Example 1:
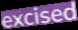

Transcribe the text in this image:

excised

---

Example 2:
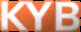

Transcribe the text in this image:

KYB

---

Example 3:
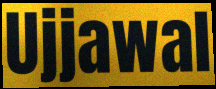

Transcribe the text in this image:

Ujjawal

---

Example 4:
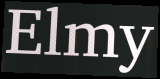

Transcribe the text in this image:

Elmy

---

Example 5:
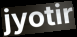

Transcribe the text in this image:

jyotir